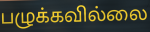
பழுக்கவில்லை